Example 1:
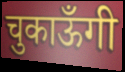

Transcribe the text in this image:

चुकाऊँगी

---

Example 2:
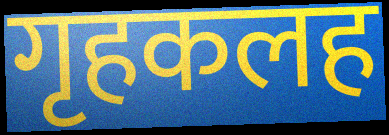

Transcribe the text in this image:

गृहकलह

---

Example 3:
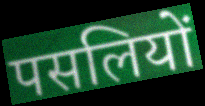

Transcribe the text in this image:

पसलियों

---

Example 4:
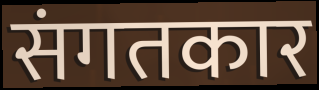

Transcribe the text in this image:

संगतकार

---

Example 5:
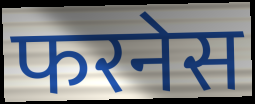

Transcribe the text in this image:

फरनेस